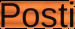
Posti